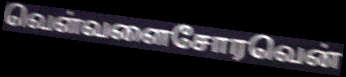
வெள்வளைசோரவென்